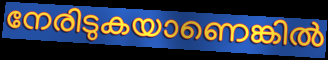
നേരിടുകയാണെങ്കിൽ